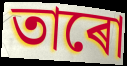
তাৰো